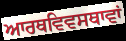
ਆਰਥਵਿਵਸਥਾਵਾਂ